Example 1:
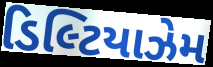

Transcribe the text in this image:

ડિલ્ટિયાઝેમ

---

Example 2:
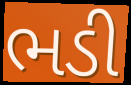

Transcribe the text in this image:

ભડી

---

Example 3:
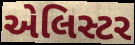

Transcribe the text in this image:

એલિસ્ટર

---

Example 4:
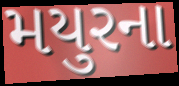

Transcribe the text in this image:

મયુરના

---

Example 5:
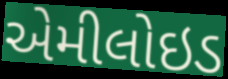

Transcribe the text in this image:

એમીલોઇડ